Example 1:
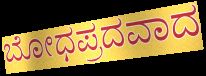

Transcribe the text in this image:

ಬೋಧಪ್ರದವಾದ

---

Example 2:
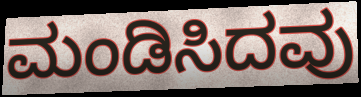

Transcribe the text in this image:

ಮಂಡಿಸಿದವು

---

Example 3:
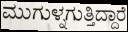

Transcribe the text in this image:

ಮುಗುಳ್ನಗುತ್ತಿದ್ದಾರೆ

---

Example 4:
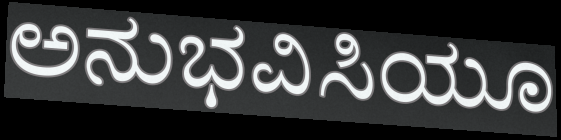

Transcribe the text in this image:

ಅನುಭವಿಸಿಯೂ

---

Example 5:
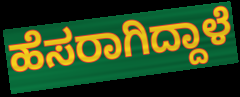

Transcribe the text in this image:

ಹೆಸರಾಗಿದ್ದಾಳೆ